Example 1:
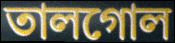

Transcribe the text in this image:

তালগোল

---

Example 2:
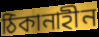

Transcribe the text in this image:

ঠিকানাহীন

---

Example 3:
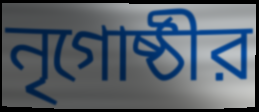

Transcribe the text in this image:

নৃগোষ্ঠীর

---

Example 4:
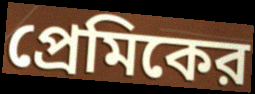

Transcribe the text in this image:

প্রেমিকের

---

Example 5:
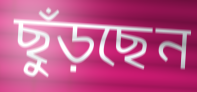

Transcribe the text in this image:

ছুঁড়ছেন